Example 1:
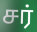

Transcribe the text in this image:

சர்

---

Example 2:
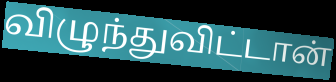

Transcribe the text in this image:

விழுந்துவிட்டான்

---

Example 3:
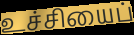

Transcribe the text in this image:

உச்சியைப்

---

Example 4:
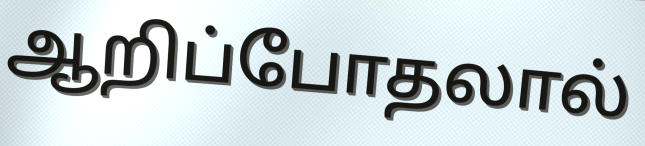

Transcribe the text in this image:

ஆறிப்போதலால்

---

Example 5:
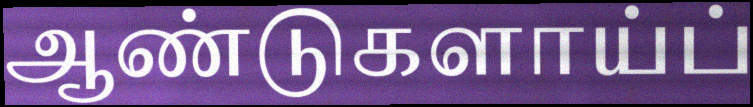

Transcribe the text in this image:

ஆண்டுகளாய்ப்